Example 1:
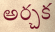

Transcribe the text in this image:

అర్చక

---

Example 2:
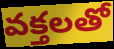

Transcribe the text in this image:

వక్తలతో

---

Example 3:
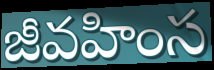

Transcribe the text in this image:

జీవహింస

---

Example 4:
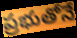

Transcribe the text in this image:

ప్రభుతోనే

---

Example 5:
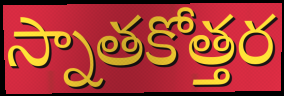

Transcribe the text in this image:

స్నాతకోత్తర